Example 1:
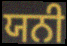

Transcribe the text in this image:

ਯਨੀ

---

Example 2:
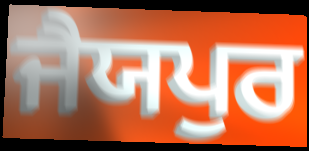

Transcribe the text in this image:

ਜੈਯਪੁਰ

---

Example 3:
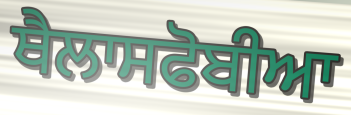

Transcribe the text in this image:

ਥੈਲਾਸਫੋਬੀਆ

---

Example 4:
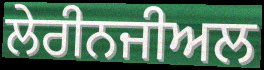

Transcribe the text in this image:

ਲੇਰੀਨਜੀਅਲ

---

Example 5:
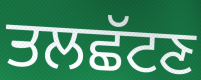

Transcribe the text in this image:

ਤਲਛੱਟਣ